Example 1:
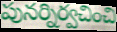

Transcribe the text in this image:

పునర్నిర్వచించి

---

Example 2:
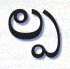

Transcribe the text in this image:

ల్ప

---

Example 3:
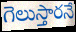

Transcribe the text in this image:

గెలుస్తారనే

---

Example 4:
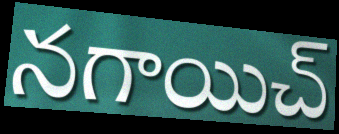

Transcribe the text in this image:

నగాయిచ్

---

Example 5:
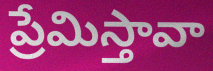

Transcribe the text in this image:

ప్రేమిస్తావా